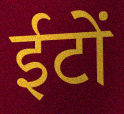
ईटों